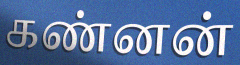
கண்னன்